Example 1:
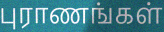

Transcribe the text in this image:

புராணங்கள்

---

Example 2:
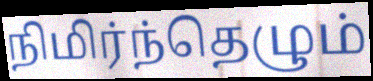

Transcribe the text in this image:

நிமிர்ந்தெழும்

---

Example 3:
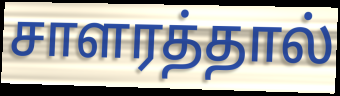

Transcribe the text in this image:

சாளரத்தால்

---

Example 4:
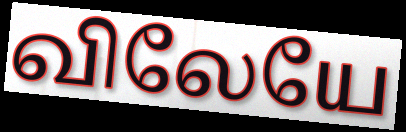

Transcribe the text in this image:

விலேயே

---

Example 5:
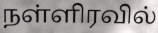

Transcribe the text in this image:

நள்ளிரவில்